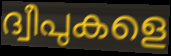
ദ്വീപുകളെ